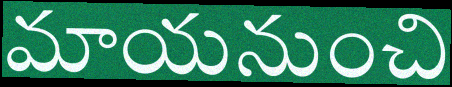
మాయనుంచి